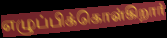
எழுப்பிக்கொள்கிறார்